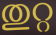
തുറ്റ